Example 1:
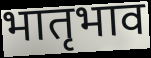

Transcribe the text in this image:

भातृभाव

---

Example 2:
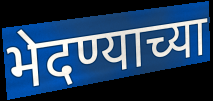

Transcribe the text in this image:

भेदण्याच्या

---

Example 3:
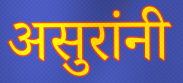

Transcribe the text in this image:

असुरांनी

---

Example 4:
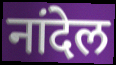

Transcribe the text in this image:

नांदेल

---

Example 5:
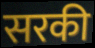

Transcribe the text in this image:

सरकी